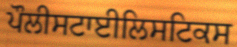
ਪੌਲੀਸਟਾਈਲਿਸਟਿਕਸ